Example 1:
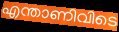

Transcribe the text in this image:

എന്താണിവിടെ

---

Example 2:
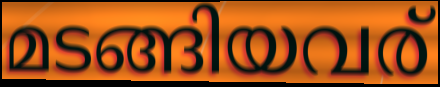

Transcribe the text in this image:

മടങ്ങിയവര്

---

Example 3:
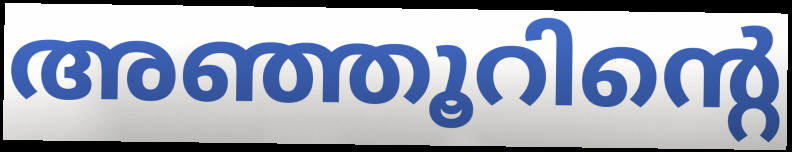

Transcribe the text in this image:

അഞ്ഞൂറിന്റെ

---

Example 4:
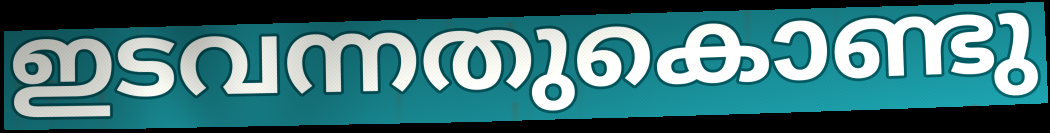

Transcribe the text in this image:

ഇടവന്നതുകൊണ്ടു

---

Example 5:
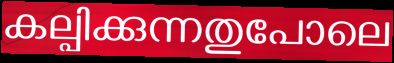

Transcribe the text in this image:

കല്പിക്കുന്നതുപോലെ